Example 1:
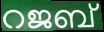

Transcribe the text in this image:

റജബ്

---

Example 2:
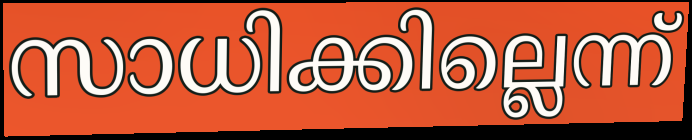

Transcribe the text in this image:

സാധിക്കില്ലെന്ന്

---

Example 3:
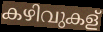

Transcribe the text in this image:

കഴിവുകള്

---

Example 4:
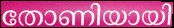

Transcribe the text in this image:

തോണിയായി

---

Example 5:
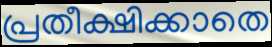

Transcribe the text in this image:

പ്രതീക്ഷിക്കാതെ